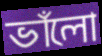
ভাঁলো